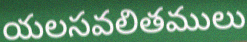
యలసవలితములు